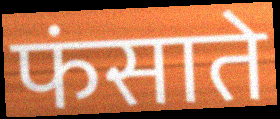
फंसाते